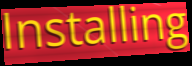
Installing